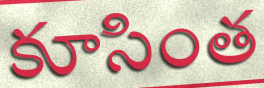
కూసింత